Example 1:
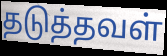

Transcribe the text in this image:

தடுத்தவள்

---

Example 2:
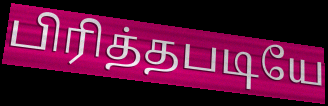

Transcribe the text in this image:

பிரித்தபடியே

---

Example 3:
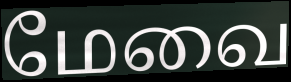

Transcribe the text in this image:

மேவை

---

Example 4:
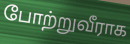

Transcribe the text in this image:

போற்றுவீராக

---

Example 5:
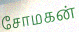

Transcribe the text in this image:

சோமகன்